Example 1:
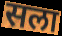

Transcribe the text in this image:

सला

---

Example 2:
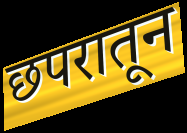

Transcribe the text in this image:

छपरातून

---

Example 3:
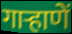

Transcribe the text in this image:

गार्‍हाणें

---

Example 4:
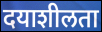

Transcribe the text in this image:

दयाशीलता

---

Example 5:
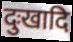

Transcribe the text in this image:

दुःखादि